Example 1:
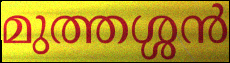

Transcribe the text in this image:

മുത്തശ്ശൻ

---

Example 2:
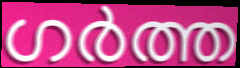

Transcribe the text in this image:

ഗർത്ത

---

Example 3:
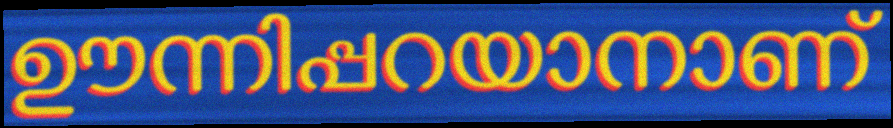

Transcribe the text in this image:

ഊന്നിപ്പറയാനാണ്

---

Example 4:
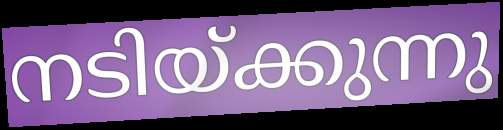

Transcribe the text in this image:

നടിയ്ക്കുന്നു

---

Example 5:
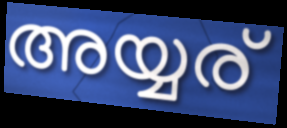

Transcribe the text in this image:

അയ്യര്